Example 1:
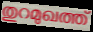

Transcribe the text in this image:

തുറമുഖത്ത്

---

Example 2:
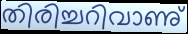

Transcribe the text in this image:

തിരിച്ചറിവാണു്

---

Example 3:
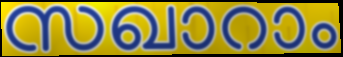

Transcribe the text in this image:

സഖാറാം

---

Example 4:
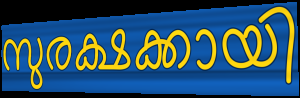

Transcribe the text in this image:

സുരക്ഷക്കായി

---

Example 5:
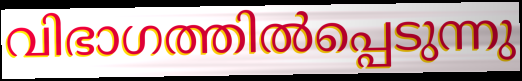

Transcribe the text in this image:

വിഭാഗത്തിൽപ്പെടുന്നു